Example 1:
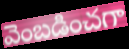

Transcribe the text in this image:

వెంబడించగా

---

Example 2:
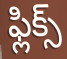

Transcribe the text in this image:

ఫ్లిక్స్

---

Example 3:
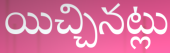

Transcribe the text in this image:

యిచ్చినట్లు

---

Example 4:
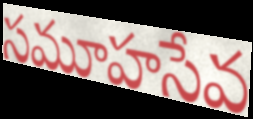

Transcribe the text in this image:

సమూహసేవ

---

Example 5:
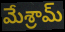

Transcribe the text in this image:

మేశ్రామ్